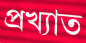
প্রখ্যাত